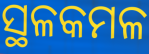
ସ୍ଥଳକମଳ